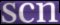
scn